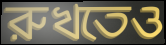
রুখতেও